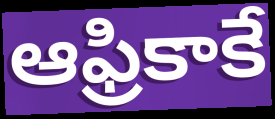
ఆఫ్రికాకే